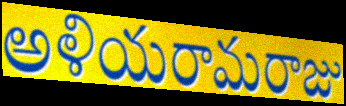
అళియరామరాజు